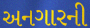
અનગારની